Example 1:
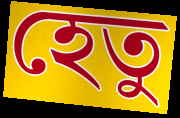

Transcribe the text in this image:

হেতু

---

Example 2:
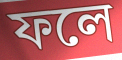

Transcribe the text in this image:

ফলে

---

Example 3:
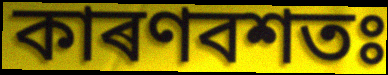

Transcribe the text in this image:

কাৰণবশতঃ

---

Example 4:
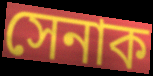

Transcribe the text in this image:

সেনাক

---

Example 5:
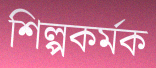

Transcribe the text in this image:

শিল্পকৰ্মক